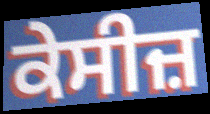
ਕੇਸੀਜ਼